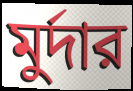
মুর্দার